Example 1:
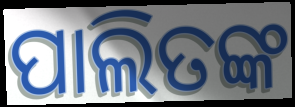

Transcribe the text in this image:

ପାଲିତଙ୍କ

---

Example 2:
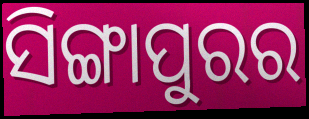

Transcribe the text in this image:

ସିଙ୍ଗାପୁରର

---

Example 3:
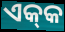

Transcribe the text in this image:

ଏକ୍‍କ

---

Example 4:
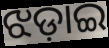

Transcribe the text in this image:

ଝଡ଼ାଇ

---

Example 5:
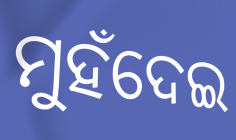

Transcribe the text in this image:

ମୁହଁଦେଇ